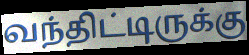
வந்திட்டிருக்கு